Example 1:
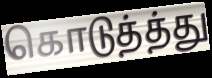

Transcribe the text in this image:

கொடுத்த்து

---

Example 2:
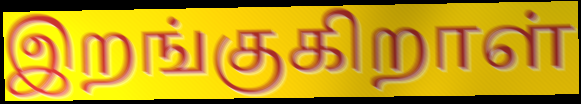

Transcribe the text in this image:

இறங்குகிறாள்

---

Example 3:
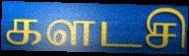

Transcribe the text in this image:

களடசி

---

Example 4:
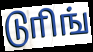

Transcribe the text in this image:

டுரிங்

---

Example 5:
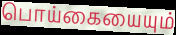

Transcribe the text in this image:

பொய்கையையும்